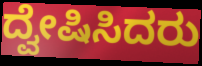
ದ್ವೇಷಿಸಿದರು